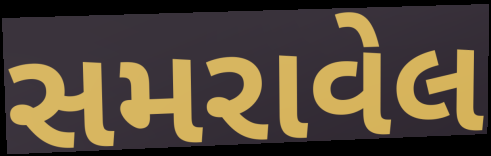
સમરાવેલ